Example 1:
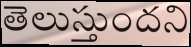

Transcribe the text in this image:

తెలుస్తుందని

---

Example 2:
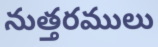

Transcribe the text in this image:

నుత్తరములు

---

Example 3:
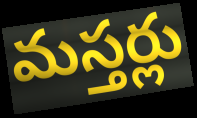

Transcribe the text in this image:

మస్తర్లు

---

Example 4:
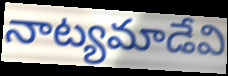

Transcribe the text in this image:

నాట్యమాడేవి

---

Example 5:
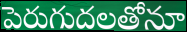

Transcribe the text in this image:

పెరుగుదలతోనూ